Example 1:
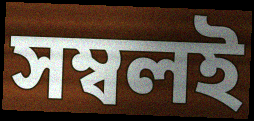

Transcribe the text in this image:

সম্বলই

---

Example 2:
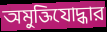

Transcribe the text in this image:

অমুক্তিযোদ্ধার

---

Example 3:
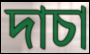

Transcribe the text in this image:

দাচা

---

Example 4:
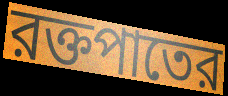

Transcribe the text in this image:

রক্তপাতের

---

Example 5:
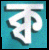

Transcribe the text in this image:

ক্ব